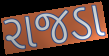
રાજડા